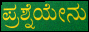
ಪ್ರಶ್ನೆಯೇನು